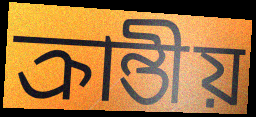
ক্ৰান্তীয়